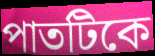
পাতটিকে